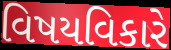
વિષયવિકારે